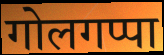
गोलगप्पा